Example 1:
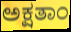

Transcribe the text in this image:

ಅಕ್ಷತಾಂ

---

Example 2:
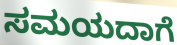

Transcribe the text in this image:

ಸಮಯದಾಗೆ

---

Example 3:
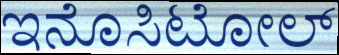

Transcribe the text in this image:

ಇನೊಸಿಟೋಲ್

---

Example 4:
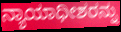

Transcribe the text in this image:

ನ್ಯಾಯಾಧೀಶರನ್ನು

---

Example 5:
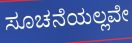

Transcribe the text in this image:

ಸೂಚನೆಯಲ್ಲವೇ